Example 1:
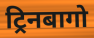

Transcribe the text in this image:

ट्रिनबागो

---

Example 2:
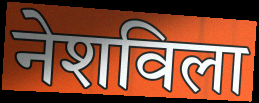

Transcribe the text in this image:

नेशविला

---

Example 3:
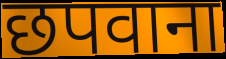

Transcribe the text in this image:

छपवाना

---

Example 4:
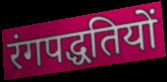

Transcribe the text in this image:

रंगपद्धतियों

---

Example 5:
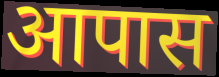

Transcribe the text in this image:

आपास